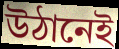
উঠানেই